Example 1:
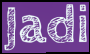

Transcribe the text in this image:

Jadi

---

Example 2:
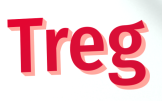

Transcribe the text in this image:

Treg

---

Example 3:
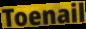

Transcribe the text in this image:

Toenail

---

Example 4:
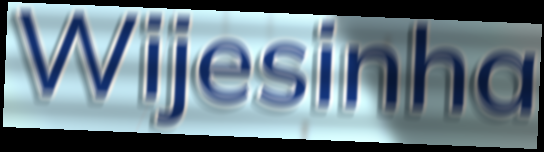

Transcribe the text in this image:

Wijesinha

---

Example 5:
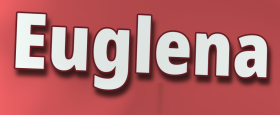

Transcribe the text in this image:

Euglena